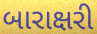
બારાક્ષરી